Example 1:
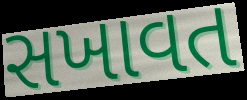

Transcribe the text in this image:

સખાવત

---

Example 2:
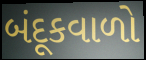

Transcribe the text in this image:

બંદૂકવાળો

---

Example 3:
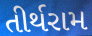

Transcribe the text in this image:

તીર્થરામ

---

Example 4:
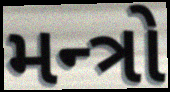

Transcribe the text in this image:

મન્ત્રો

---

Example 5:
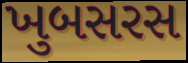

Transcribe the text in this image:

ખુબસરસ